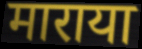
माराया